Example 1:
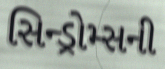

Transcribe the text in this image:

સિન્ડ્રોમ્સની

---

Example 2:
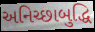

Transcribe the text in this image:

અનિચ્છાબુદ્ધિ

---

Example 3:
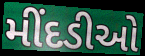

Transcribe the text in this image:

મીંદડીઓ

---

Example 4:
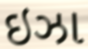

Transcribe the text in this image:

ઇઝા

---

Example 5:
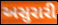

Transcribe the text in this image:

અસુરારી